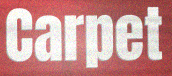
Carpet